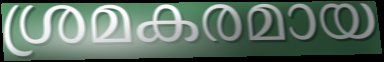
ശ്രമകരമായ